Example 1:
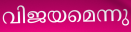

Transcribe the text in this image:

വിജയമെന്നു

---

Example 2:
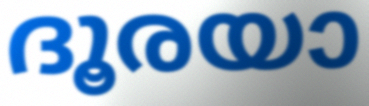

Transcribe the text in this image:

ദൂരയാ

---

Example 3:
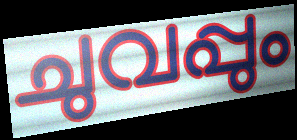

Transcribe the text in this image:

ചുവപ്പും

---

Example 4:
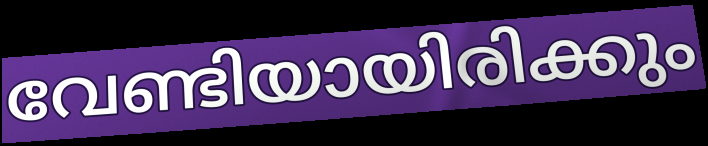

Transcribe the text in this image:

വേണ്ടിയായിരിക്കും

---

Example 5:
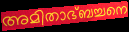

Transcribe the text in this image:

അമിതാഭ്ബച്ചനെ